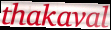
thakaval